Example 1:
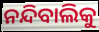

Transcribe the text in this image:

ନନ୍ଦିବାଲିକୁ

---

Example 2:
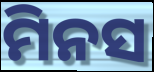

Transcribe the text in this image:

ମିନସ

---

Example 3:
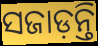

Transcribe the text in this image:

ସଜାଡ଼ନ୍ତି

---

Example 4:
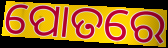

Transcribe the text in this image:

ପୋତରେ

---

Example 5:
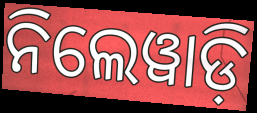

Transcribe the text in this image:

ନିଲେୱାଡ଼ି